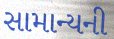
સામાન્યની